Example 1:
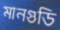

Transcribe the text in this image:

মানগুডি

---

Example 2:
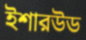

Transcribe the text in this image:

ইশারউড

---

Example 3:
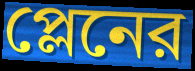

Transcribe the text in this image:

প্লেনের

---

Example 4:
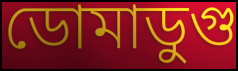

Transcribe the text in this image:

ডোমাডুগু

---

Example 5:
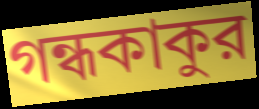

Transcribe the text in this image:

গন্ধকাকুর